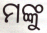
ମଙ୍କୁ